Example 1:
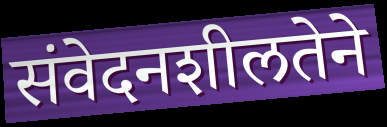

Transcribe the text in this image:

संवेदनशीलतेने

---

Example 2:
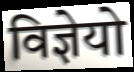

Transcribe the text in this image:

विज्ञेयो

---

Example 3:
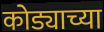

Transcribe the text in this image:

कोड्याच्या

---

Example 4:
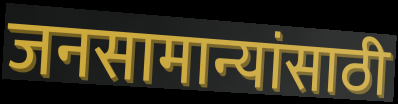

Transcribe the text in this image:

जनसामान्यांसाठी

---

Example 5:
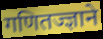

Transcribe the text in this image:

गणितज्ज्ञाने